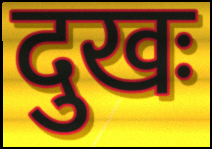
दुखः